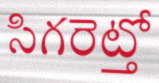
సిగరెట్తో